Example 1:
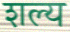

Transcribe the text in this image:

शल्‍य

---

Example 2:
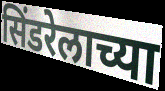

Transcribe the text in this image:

सिंडरेलाच्या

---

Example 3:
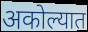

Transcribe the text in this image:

अकोल्यात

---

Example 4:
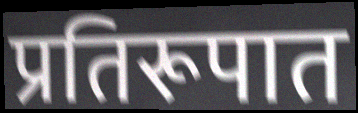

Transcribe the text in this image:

प्रतिरूपात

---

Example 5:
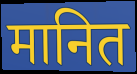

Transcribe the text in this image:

मानित